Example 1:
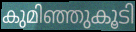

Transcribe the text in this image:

കുമിഞ്ഞുകൂടി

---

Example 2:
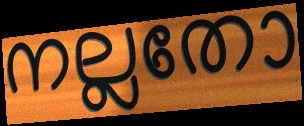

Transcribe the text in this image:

നല്ലതോ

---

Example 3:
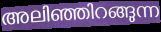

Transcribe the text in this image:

അലിഞ്ഞിറങ്ങുന്ന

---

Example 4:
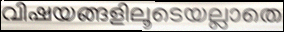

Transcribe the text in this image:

വിഷയങ്ങളിലൂടെയല്ലാതെ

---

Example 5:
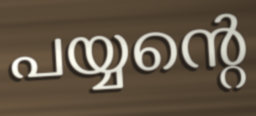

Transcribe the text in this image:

പയ്യന്റെ